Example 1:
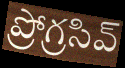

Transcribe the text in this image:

ప్రోగ్రసివ్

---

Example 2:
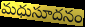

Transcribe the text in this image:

మధుసూదనం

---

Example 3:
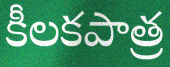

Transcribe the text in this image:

కీలకపాత్ర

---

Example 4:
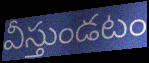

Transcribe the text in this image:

వీస్తుండటం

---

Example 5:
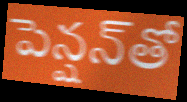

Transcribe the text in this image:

పెన్షన్‌తో